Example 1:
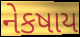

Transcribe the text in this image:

નેકષાય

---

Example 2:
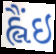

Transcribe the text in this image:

હ્લૈંઇ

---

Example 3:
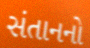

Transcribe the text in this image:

સંતાનનો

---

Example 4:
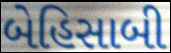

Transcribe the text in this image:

બેહિસાબી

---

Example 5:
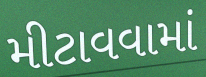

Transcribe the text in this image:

મીટાવવામાં